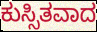
ಕುಸ್ಸಿತವಾದ